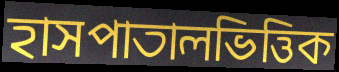
হাসপাতালভিত্তিক